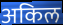
अकिल